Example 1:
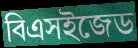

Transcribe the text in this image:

বিএসইজেড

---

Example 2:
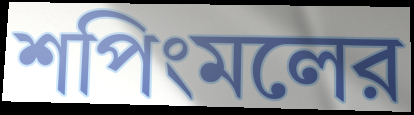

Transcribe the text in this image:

শপিংমলের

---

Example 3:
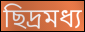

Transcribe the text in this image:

ছিদ্রমধ্য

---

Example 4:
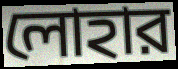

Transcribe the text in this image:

লোহার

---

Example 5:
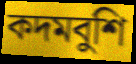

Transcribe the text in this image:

কদমবুশি